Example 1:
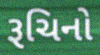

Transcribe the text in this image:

રૂચિનો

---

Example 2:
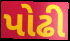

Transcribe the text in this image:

પોઢી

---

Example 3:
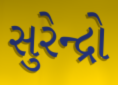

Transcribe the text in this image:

સુરેન્દ્રો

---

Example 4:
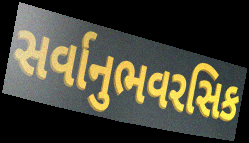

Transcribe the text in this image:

સર્વાનુભવરસિક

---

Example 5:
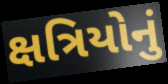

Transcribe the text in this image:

ક્ષત્રિયોનું